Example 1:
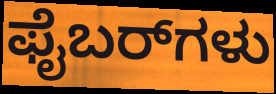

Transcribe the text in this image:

ಫೈಬರ್‌ಗಳು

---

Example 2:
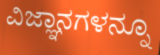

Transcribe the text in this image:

ವಿಜ್ಞಾನಗಳನ್ನೂ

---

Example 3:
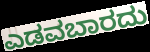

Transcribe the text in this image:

ಎಡವಬಾರದು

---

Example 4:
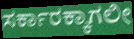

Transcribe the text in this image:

ಸರ್ಕಾರಕ್ಕಾಗಲೀ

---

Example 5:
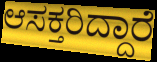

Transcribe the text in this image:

ಆಸಕ್ತರಿದ್ದಾರೆ